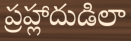
ప్రహ్లాదుడిలా